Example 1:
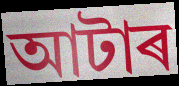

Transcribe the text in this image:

আটাৰ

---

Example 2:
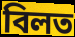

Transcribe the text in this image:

বিলত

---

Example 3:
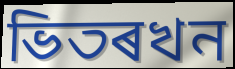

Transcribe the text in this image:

ভিতৰখন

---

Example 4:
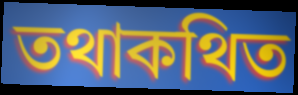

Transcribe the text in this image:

তথাকথিত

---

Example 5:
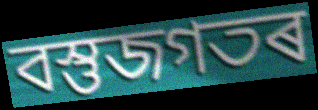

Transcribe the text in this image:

বস্তুজগতৰ